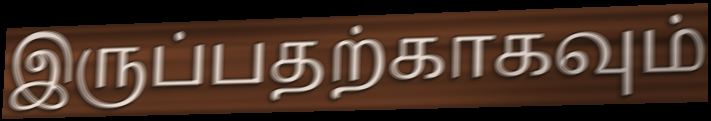
இருப்பதற்காகவும்